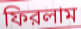
ফিরলাম